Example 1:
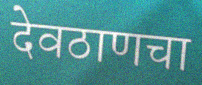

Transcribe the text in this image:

देवठाणचा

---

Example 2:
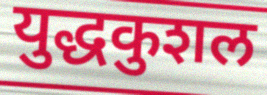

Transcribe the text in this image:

युद्धकुशल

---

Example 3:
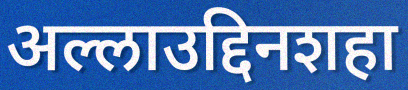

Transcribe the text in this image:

अल्लाउद्दिनशहा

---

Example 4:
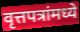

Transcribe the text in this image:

वृत्तपत्रांमध्ये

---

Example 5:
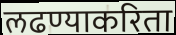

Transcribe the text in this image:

लढण्याकरिता